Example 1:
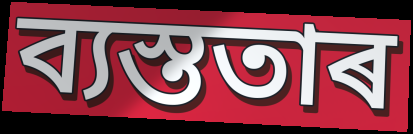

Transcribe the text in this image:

ব্যস্ততাৰ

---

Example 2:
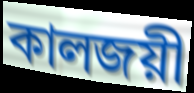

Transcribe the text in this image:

কালজয়ী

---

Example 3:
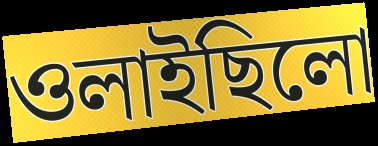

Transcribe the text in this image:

ওলাইছিলো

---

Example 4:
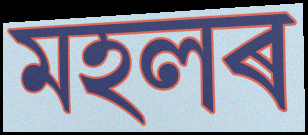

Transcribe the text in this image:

মহলৰ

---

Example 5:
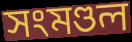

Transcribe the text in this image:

সংমণ্ডল